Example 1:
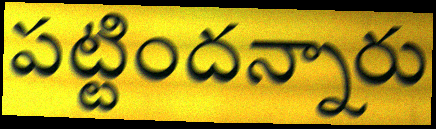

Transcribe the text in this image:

పట్టిందన్నారు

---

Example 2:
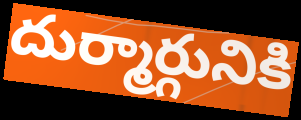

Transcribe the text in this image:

దుర్మార్గునికి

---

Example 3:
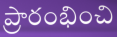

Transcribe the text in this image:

ప్రారంభించి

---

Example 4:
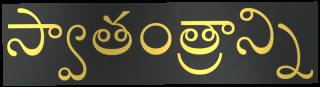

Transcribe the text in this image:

స్వాతంత్రాన్ని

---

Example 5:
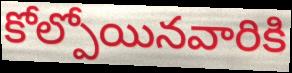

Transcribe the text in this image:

కోల్పోయినవారికి